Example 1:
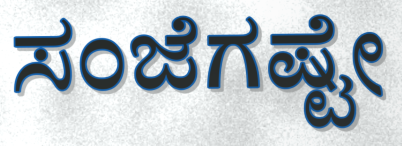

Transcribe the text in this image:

ಸಂಜೆಗಷ್ಟೇ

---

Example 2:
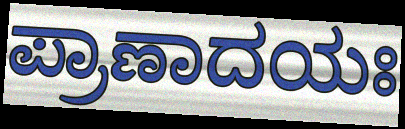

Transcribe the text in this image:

ಪ್ರಾಣಾದಯಃ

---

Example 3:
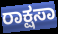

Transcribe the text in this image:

ರಾಕ್ಷಸಾ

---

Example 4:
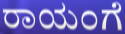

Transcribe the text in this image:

ರಾಯಂಗೆ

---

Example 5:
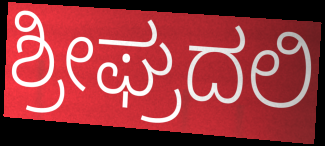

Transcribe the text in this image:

ಶ್ರೀಘ್ರದಲಿ